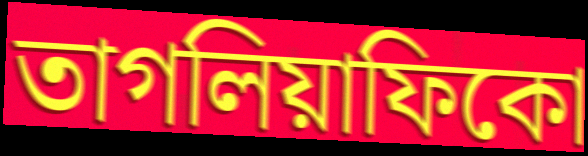
তাগলিয়াফিকো